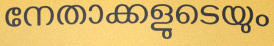
നേതാക്കളുടെയും